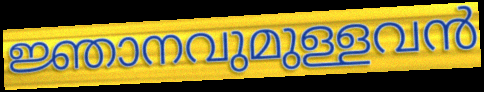
ജ്ഞാനവുമുള്ളവൻ